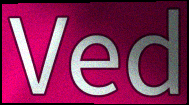
Ved